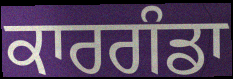
ਕਾਰਗੰਡਾ